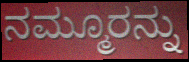
ನಮ್ಮೂರನ್ನು